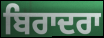
ਬਿਰਾਦਰਾ